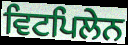
ਵਿਟਪਿਲੇਨ